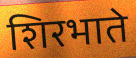
शिरभाते